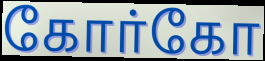
கோர்கோ